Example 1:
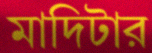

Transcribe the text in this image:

মাদিটার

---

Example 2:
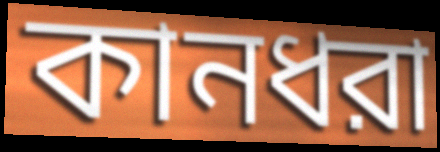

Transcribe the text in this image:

কানধরা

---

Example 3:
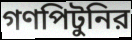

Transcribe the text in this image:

গণপিটুনির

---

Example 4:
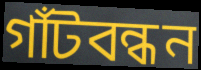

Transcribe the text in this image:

গাঁটবন্ধন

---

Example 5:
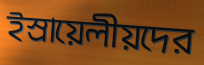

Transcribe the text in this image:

ইস্রায়েলীয়দের